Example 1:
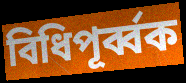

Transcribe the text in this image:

বিধিপূর্ব্বক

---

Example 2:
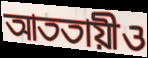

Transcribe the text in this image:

আততায়ীও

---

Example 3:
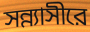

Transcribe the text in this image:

সন্ন্যাসীরে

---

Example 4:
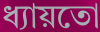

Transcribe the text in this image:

ধ্যায়তো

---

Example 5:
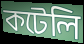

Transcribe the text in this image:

কটেলি